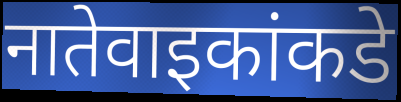
नातेवाइकांकडे